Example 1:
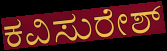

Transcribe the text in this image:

ಕವಿಸುರೇಶ್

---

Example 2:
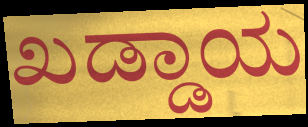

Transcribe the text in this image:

ಖಡ್ಡಾಯ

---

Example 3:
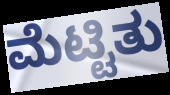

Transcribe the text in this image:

ಮೆಟ್ಟಿತು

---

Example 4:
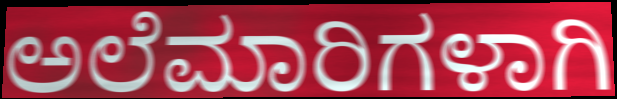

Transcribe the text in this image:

ಅಲೆಮಾರಿಗಳಾಗಿ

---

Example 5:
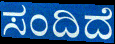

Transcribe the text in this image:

ಸಂದಿದೆ